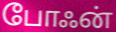
போஃன்